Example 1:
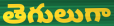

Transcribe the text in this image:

తెగులుగా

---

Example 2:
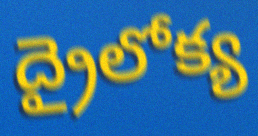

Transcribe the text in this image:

ద్రైలోక్య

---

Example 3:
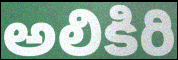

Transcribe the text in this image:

అలికిరి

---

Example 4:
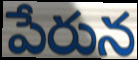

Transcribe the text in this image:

పేరున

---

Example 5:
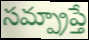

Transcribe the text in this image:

సమ్ప్రాప్తే